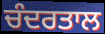
ਚੰਦਰਤਾਲ